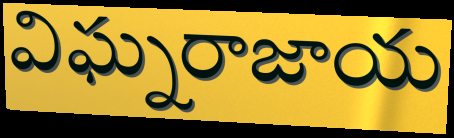
విఘ్నరాజాయ